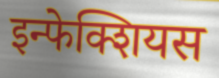
इन्फेक्शियस